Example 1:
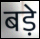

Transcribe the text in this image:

बड़े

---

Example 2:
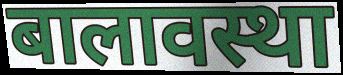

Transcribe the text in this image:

बालावस्था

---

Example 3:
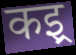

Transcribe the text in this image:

कइ्र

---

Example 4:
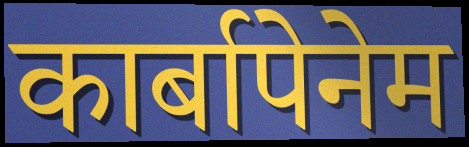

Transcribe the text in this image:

कार्बापेनेम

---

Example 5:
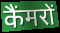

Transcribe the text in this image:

कैंमरों